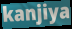
kanjiya